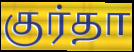
குர்தா